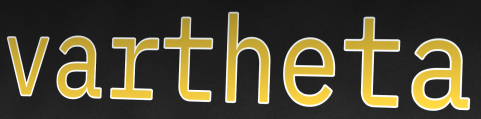
vartheta